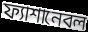
ফ্যাশানেবল